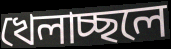
খেলাচ্ছলে